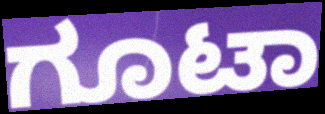
ಗೂಟಾ